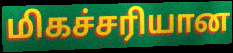
மிகச்சரியான